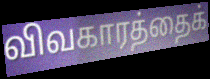
விவகாரத்தைக்